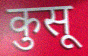
कुसू